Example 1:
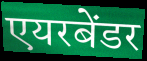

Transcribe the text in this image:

एयरबेंडर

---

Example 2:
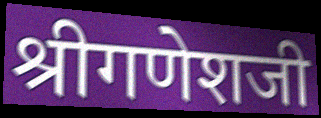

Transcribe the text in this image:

श्रीगणेशजी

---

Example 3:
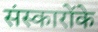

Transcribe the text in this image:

संस्कारोंके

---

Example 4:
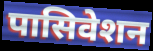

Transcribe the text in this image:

पासिवेशन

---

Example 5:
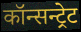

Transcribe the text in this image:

कॉन्सन्ट्रेट